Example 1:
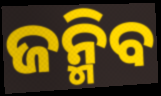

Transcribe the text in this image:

ଜନ୍ମିବ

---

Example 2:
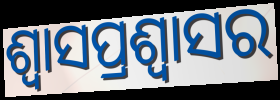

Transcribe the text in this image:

ଶ୍ଵାସପ୍ରଶ୍ଵାସର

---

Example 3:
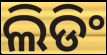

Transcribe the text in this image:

ଲିଡିଂ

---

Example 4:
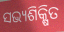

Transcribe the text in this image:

ସଭ୍ୟଶିକ୍ଷିତ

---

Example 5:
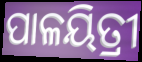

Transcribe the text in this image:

ପାଳୟିତ୍ରୀ